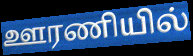
ஊரணியில்